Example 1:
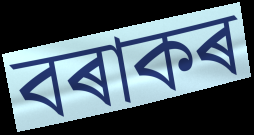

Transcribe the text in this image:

বৰাকৰ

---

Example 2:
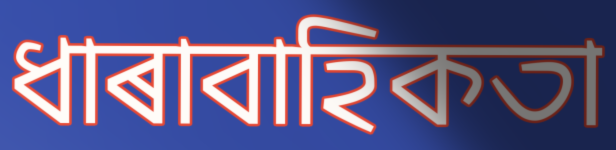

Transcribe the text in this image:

ধাৰাবাহিকতা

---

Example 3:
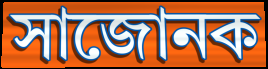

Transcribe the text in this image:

সাজোনক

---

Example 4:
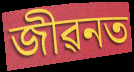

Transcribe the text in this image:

জীৱনত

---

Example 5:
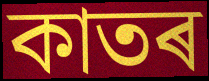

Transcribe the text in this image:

কাতৰ